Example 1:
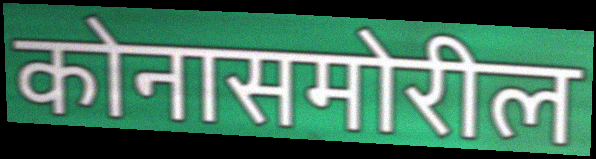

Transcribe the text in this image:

कोनासमोरील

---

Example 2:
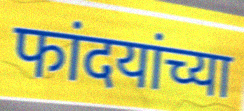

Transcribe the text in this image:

फांदयांच्या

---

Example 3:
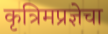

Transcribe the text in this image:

कृत्रिमप्रज्ञेचा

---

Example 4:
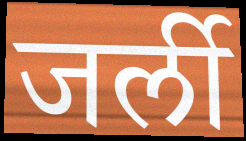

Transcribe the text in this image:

जर्ली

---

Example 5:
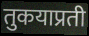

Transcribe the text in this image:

तुकयाप्रती